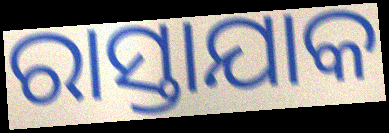
ରାସ୍ତାଯାକ